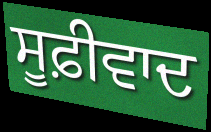
ਸੂਫ਼ੀਵਾਦ